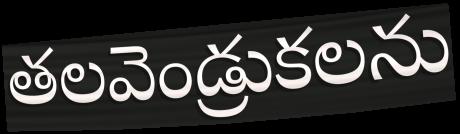
తలవెండ్రుకలను